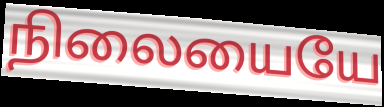
நிலையையே